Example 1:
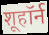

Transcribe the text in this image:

शूहॉर्न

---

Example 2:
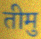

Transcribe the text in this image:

तीमु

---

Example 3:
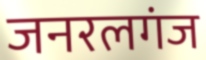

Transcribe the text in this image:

जनरलगंज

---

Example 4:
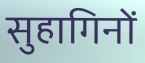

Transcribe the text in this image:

सुहागिनों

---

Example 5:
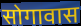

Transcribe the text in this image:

सोगावास